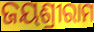
ଜୟଶ୍ରୀରାମ